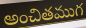
అంచితముగ